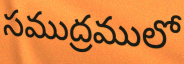
సముద్రములో